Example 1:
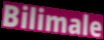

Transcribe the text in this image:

Bilimale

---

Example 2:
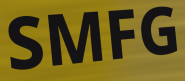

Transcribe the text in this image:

SMFG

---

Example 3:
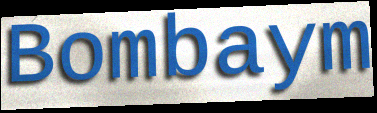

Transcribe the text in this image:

Bombaym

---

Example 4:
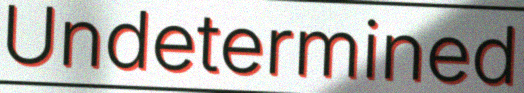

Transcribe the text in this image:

Undetermined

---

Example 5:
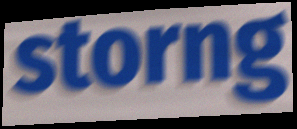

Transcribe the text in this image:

storng